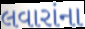
લવારાંના